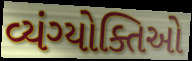
વ્યંગ્યોક્તિઓ